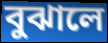
বুঝালে